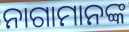
ନାଗାମାନଙ୍କ